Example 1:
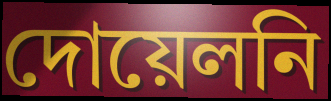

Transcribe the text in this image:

দোয়েলনি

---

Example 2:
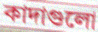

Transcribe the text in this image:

কাদাগুলো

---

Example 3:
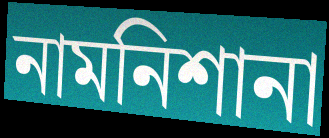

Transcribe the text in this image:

নামনিশানা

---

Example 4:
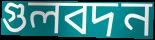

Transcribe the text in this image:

গুলবদন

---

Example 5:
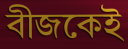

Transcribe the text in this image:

বীজকেই